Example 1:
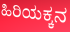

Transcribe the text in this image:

ಹಿರಿಯಕ್ಕನ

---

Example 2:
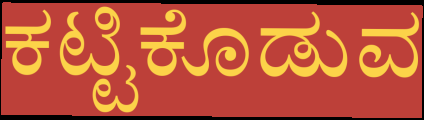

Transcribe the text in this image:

ಕಟ್ಟಿಕೊಡುವ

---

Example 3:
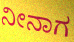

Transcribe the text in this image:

ನೀನಾಗ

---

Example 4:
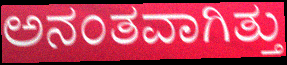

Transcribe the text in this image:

ಅನಂತವಾಗಿತ್ತು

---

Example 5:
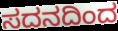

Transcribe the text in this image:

ಸದನದಿಂದ